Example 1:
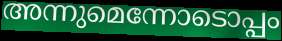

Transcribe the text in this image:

അന്നുമെന്നോടൊപ്പം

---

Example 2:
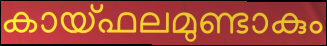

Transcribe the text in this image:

കായ്ഫലമുണ്ടാകും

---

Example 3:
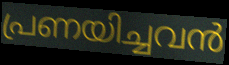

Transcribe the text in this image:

പ്രണയിച്ചവൻ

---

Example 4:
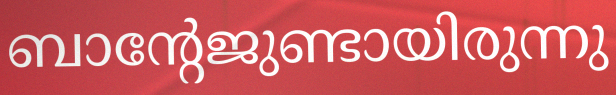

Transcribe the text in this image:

ബാന്റേജുണ്ടായിരുന്നു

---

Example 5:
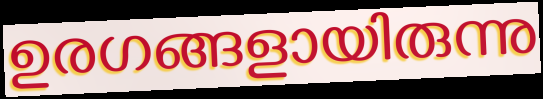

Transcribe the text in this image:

ഉരഗങ്ങളായിരുന്നു